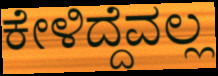
ಕೇಳಿದ್ದೆವಲ್ಲ